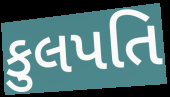
કુલપતિ